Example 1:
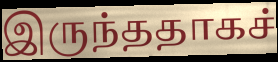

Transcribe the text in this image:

இருந்ததாகச்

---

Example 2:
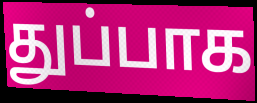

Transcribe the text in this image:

துப்பாக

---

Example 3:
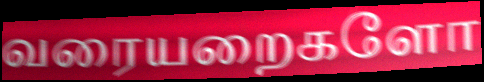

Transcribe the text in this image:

வரையறைகளோ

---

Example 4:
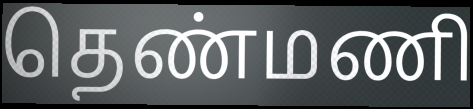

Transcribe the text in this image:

தெண்மணி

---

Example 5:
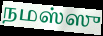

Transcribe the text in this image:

நமஸ்ஸு